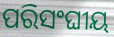
ପରିସଂଘୀୟ